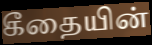
கீதையின்